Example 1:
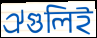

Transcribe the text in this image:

ঐগুলিই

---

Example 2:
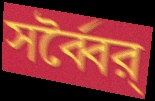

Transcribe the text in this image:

সর্ব্বৈর্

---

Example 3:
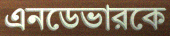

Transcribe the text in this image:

এনডেভারকে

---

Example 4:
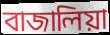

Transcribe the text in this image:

বাজালিয়া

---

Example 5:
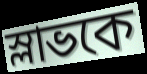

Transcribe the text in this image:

স্লাভকে